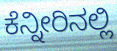
ಕೆನ್ನೀರಿನಲ್ಲಿ